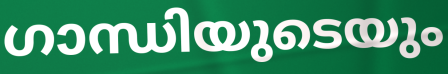
ഗാന്ധിയുടെയും